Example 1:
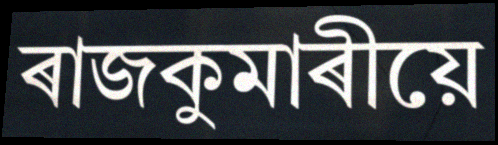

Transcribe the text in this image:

ৰাজকুমাৰীয়ে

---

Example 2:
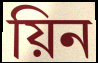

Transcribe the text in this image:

য়িন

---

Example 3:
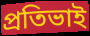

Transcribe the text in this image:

প্ৰতিভাই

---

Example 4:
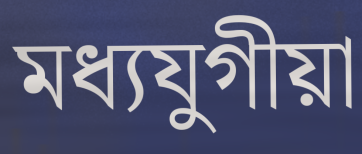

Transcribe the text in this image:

মধ্যযুগীয়া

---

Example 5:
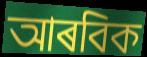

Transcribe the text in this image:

আৰবিক